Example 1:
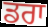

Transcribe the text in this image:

ਡਰਾ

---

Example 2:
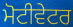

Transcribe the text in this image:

ਮੋਟੀਵੇਟਰ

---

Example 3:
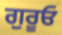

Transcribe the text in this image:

ਗੁਰੂਓ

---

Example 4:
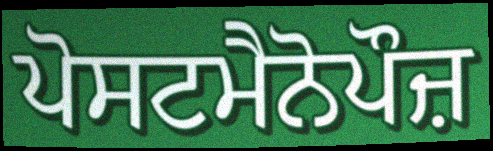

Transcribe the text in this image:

ਪੋਸਟਮੈਨੋਪੌਜ਼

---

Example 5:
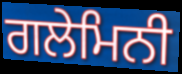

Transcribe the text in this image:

ਗਲੇਮਿਨੀ